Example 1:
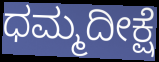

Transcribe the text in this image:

ಧಮ್ಮದೀಕ್ಷೆ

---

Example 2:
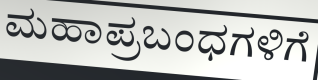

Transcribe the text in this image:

ಮಹಾಪ್ರಬಂಧಗಳಿಗೆ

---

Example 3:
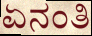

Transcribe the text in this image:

ಏನಂತಿ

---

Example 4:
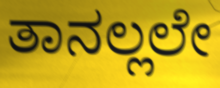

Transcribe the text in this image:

ತಾನಲ್ಲಲೇ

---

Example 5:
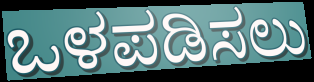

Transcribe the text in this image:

ಒಳಪಡಿಸಲು